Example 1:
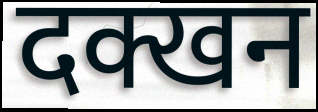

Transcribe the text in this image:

दक्खन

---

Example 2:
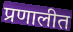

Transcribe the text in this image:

प्रणालीत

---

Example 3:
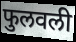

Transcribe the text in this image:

फुलवली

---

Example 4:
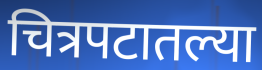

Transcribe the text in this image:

चित्रपटातल्या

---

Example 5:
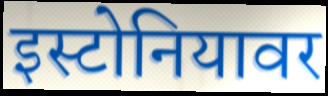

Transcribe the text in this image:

इस्टोनियावर